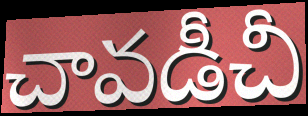
చావడీచీ